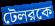
টেলরকে